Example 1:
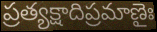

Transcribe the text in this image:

ప్రత్యక్షాదిప్రమాణైః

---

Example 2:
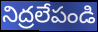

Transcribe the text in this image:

నిద్రలేపండి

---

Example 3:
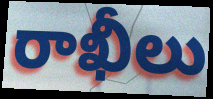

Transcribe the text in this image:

రాఖీలు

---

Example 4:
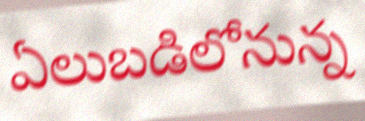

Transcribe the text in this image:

ఏలుబడిలోనున్న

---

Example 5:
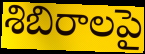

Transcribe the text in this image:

శిబిరాలపై